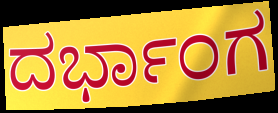
ದರ್ಭಾಂಗ